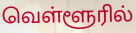
வெள்ளூரில்